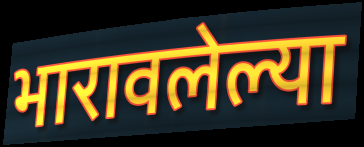
भारावलेल्या